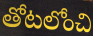
తోటలోంచి